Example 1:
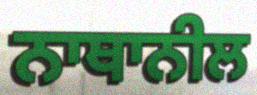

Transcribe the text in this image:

ਨਾਥਾਨੀਲ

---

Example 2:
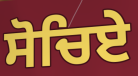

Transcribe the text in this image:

ਸੋਚਿਏ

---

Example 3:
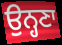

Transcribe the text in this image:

ਉਨ੍ਹਣਾ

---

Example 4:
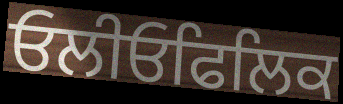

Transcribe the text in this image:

ਓਲੀਓਫਿਲਿਕ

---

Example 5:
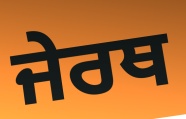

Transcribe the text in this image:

ਜੇਰਥ